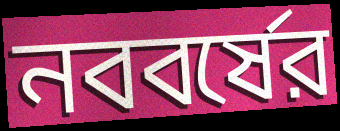
নববর্ষের